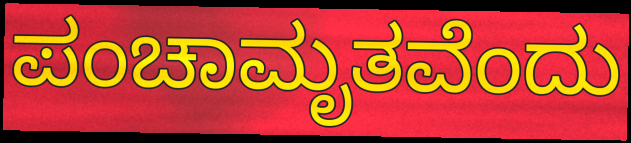
ಪಂಚಾಮೃತವೆಂದು